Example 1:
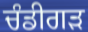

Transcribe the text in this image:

ਚੰਡੀਗਡ਼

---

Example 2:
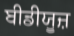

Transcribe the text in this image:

ਬੀਡੀਯੂਜ਼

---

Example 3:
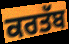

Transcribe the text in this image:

ਕਰਤੱਬ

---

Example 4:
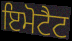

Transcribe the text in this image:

ਇਮੋਟੈਟ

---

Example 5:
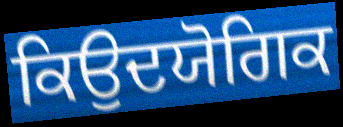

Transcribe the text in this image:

ਕਿਉਦਯੋਗਿਕ